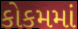
કોકમમાં